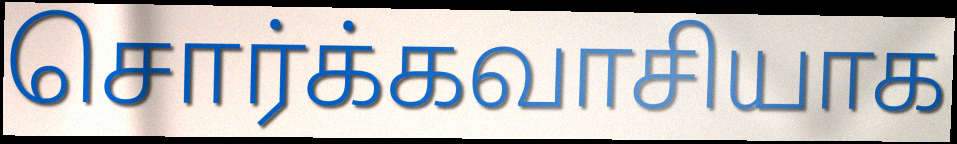
சொர்க்கவாசியாக